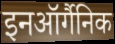
इनऑर्गैनिक